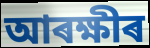
আৰক্ষীৰ